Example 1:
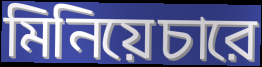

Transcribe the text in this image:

মিনিয়েচারে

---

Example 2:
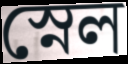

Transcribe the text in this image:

স্নেল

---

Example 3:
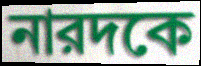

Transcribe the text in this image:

নারদকে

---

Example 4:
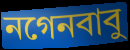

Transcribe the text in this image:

নগেনবাবু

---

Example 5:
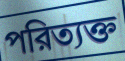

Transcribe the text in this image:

পরিত্যক্ত